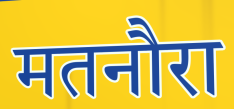
मतनौरा